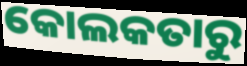
କୋଲକତାରୁ